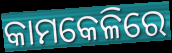
କାମକେଳିରେ